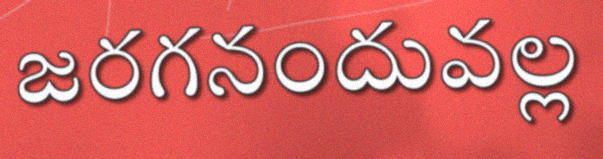
జరగనందువల్ల